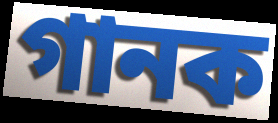
গানক